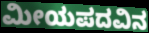
ಮೀಯಪದವಿನ